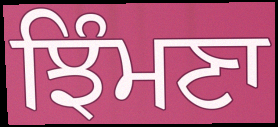
ਝਿੰਮਣਾ